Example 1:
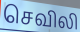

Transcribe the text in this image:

செவிலி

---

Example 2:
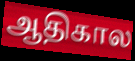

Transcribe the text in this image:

ஆதிகால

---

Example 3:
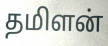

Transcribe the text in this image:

தமிளன்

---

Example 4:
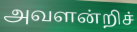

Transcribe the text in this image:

அவளன்றிச்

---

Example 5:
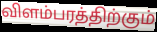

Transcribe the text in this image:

விளம்பரத்திற்கும்